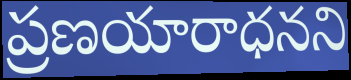
ప్రణయారాధనని